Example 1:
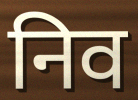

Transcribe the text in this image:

निव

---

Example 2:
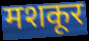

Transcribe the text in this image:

मशकूर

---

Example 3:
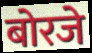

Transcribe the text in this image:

बोरजे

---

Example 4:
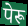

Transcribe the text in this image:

पेरू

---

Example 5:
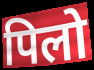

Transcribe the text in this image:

पिलो